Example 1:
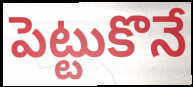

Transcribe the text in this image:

పెట్టుకొనే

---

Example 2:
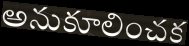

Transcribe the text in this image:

అనుకూలించక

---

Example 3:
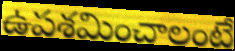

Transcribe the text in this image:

ఉపశమించాలంటే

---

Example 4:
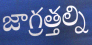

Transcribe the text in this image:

జాగ్రత్తల్ని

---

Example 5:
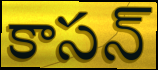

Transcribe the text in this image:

కాసన్